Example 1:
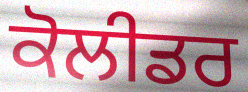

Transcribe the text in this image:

ਕੋਲੀਡਰ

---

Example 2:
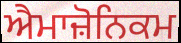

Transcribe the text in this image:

ਐਮਾਜ਼ੋਨਿਕਮ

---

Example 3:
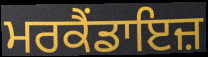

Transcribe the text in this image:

ਮਰਕੈਂਡਾਇਜ਼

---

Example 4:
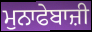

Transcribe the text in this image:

ਮੁਨਾਫੇਬਾਜ਼ੀ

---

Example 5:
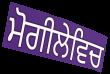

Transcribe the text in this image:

ਮੋਗੀਲੇਵਿਚ